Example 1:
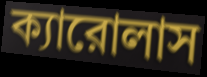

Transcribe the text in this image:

ক্যারোলাস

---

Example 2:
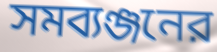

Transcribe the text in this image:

সমব্যঞ্জনের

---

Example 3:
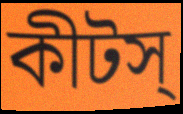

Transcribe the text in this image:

কীটস্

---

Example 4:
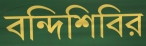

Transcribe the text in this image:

বন্দিশিবির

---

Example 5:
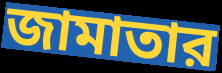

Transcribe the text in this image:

জামাতার